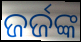
ଜର୍ଜଙ୍କ